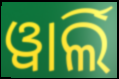
ୱାର୍ଲି